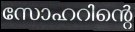
സോഹറിന്റെ